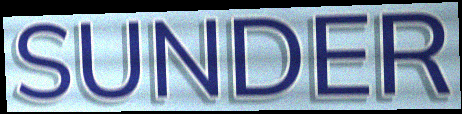
SUNDER